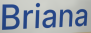
Briana